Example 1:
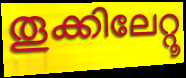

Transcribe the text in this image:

തൂക്കിലേറ്റൂ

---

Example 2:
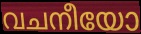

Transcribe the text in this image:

വചനീയോ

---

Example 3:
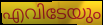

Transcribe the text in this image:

എവിടേയും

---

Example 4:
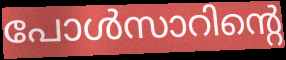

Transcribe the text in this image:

പോൾസാറിന്റെ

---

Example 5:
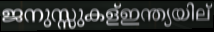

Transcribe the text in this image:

ജനുസ്സുകള്ഇന്ത്യയില്